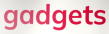
gadgets